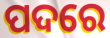
ପଦରେ